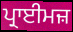
ਪ੍ਰਾਈਮਜ਼